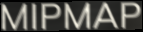
MIPMAP